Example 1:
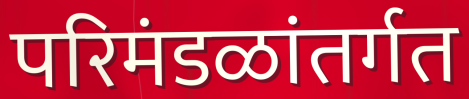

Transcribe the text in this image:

परिमंडळांतर्गत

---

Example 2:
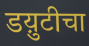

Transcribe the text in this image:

डय़ुटीचा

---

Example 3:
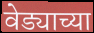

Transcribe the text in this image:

वेड्याच्या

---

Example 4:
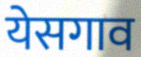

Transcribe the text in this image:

येसगाव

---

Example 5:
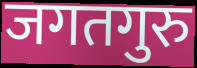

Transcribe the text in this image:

जगतगुरु